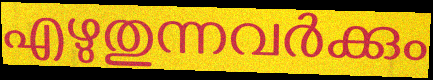
എഴുതുന്നവർക്കും